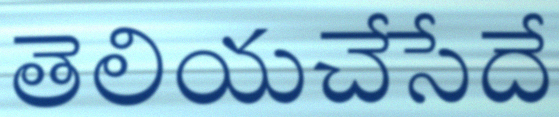
తెలియచేసేదే